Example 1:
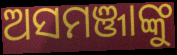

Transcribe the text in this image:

ଅସମଞ୍ଜାଙ୍କୁ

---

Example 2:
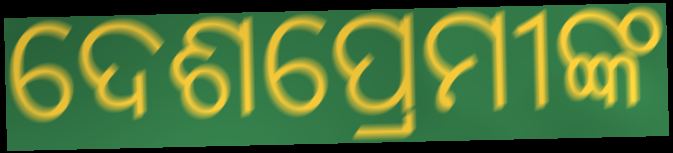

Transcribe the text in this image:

ଦେଶପ୍ରେମୀଙ୍କ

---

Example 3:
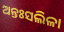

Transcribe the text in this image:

ଅନ୍ତଃସଲିଳା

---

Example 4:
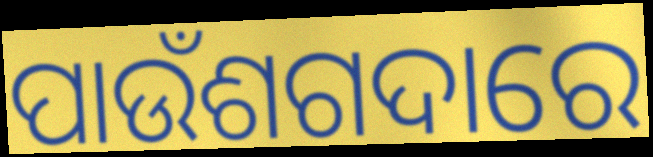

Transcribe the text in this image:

ପାଉଁଶଗଦାରେ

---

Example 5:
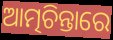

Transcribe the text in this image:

ଆତ୍ମଚିନ୍ତାରେ